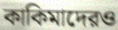
কাকিমাদেরও